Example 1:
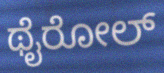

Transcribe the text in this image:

ಥೈರೋಲ್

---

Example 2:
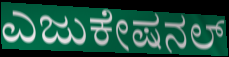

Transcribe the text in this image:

ಎಜುಕೇಷನಲ್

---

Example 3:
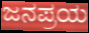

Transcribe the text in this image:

ಜನಪ್ರಯ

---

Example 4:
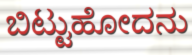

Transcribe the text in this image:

ಬಿಟ್ಟುಹೋದನು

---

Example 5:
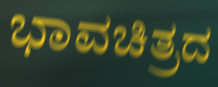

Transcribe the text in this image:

ಭಾವಚಿತ್ರದ